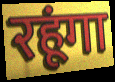
रहूंगा